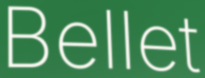
Bellet